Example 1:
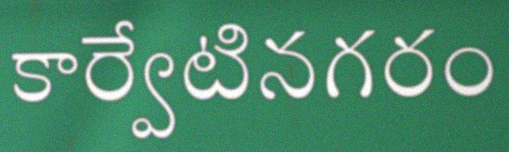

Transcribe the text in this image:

కార్వేటినగరం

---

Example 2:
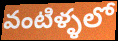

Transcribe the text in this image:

వంటిళ్ళలో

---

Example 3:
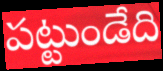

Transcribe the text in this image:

పట్టుండేది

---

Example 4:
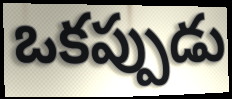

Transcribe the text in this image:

ఒకప్పుడు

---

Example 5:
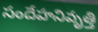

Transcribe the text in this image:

సందేహనివృత్తి